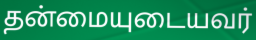
தன்மையுடையவர்